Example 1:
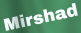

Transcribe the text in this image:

Mirshad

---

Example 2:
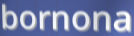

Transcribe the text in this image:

bornona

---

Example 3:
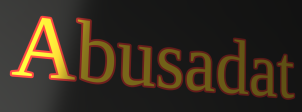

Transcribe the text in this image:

Abusadat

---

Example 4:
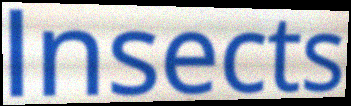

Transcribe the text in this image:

Insects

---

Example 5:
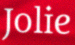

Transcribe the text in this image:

Jolie